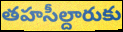
తహసీల్దారుకు